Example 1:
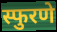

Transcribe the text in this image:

स्फुरणे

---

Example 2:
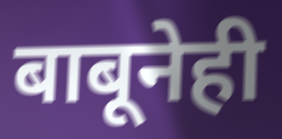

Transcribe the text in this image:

बाबूनेही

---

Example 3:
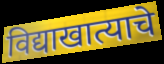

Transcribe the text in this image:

विद्याखात्याचे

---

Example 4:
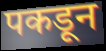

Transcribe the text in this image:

पकडून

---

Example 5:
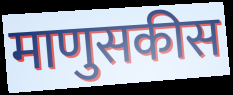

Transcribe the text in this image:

माणुसकीस